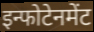
इन्फोटेनमेंट